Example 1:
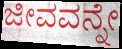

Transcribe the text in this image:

ಜೀವವನ್ನೇ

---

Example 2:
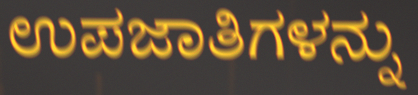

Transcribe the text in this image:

ಉಪಜಾತಿಗಳನ್ನು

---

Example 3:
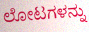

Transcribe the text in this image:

ಲೋಟಗಳನ್ನು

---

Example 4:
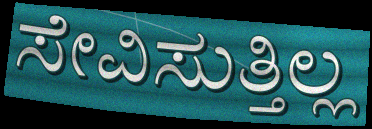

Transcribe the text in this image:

ಸೇವಿಸುತ್ತಿಲ್ಲ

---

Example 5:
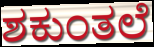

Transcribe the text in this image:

ಶಕುಂತಲೆ